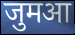
जुमआ